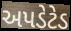
અપડેટેડ